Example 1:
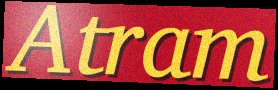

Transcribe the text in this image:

Atram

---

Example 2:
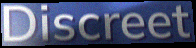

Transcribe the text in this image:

Discreet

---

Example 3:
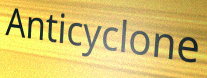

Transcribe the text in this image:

Anticyclone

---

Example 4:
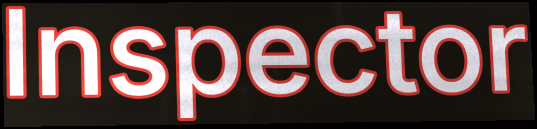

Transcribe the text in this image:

Inspector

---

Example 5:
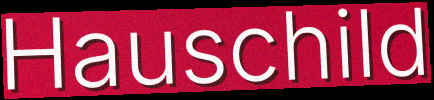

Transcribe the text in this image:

Hauschild